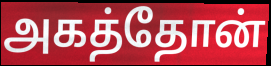
அகத்தோன்